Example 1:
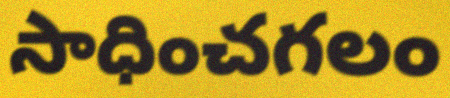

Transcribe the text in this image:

సాధించగలం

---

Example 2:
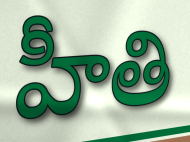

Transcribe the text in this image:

హీతి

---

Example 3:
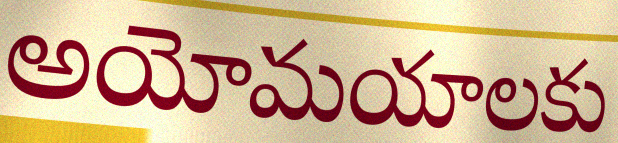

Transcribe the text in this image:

అయోమయాలకు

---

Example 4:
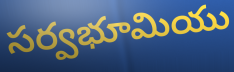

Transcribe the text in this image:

సర్వభూమియు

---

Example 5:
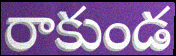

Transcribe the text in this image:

రాకుండ